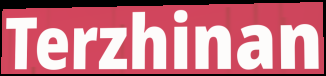
Terzhinan